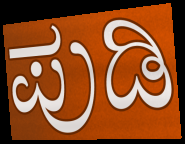
ಪುಡಿ